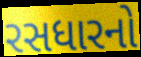
રસધારનો